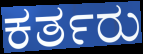
ಕರ್ತರು